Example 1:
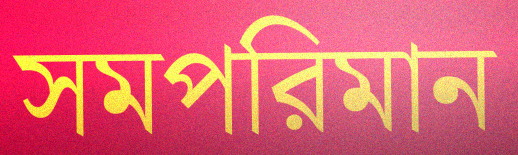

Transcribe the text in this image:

সমপরিমান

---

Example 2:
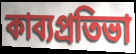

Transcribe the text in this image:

কাব্যপ্রতিভা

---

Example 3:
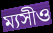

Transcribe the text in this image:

ম্যসীও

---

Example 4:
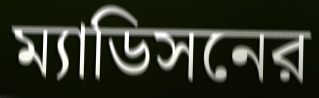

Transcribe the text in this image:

ম্যাডিসনের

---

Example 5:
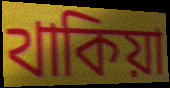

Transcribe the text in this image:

থাকিয়া